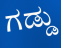
ಗಡ್ಡು